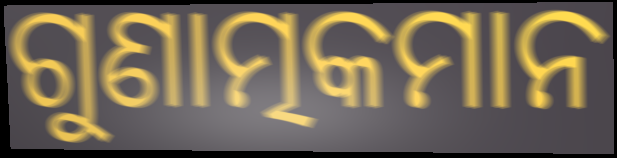
ଗୁଣାତ୍ମକମାନ